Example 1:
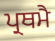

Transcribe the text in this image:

ਪ੍ਰਥਮੈ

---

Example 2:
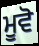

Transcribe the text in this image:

ਮੂਵੋ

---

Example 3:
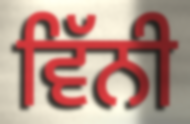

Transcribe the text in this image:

ਵਿੱਨੀ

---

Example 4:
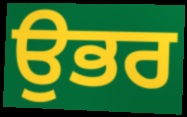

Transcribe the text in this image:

ਉਭਰ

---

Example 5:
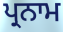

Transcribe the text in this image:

ਪ੍ਰਨਾਮ